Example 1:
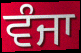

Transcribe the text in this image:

ਵੰਜਾ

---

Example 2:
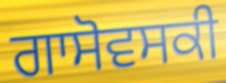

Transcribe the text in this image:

ਗਾਸੋਵਸਕੀ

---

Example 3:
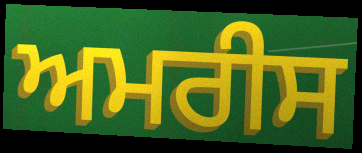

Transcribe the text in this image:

ਅਮਰੀਸ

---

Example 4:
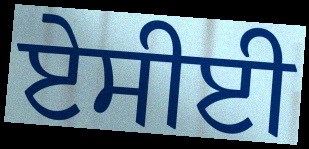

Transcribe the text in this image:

ਏਸੀਈ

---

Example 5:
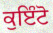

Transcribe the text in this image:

ਕੁਇੰਟੋ